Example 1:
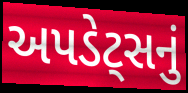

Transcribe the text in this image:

અપડેટ્સનું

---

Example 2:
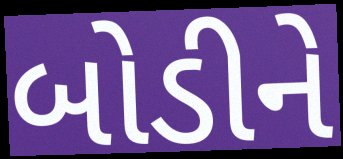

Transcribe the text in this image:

બોડીને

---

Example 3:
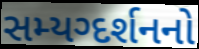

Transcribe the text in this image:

સમ્યગ્દર્શનનો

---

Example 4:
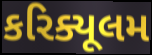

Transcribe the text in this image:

કરિક્યૂલમ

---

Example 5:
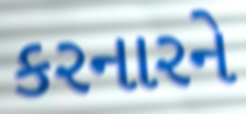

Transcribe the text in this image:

કરનારને